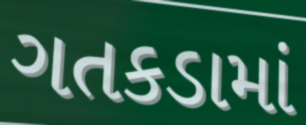
ગતકડામાં